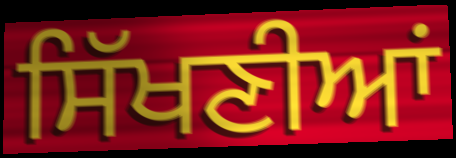
ਸਿੱਖਣੀਆਂ